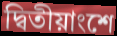
দ্বিতীয়াংশে